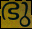
ഭു